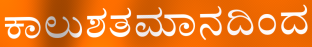
ಕಾಲುಶತಮಾನದಿಂದ